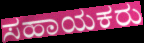
ಸಹಾಯಕರು